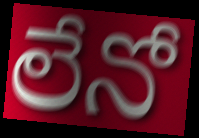
లేనో